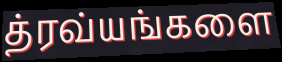
த்ரவ்யங்களை